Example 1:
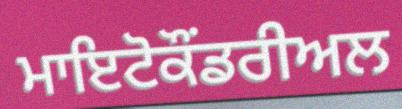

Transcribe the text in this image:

ਮਾਇਟੋਕੌਂਡਰੀਅਲ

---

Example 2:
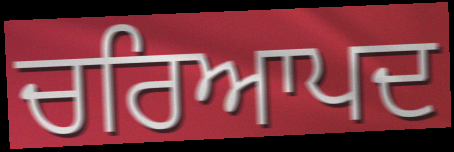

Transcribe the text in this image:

ਚਰਿਆਪਦ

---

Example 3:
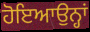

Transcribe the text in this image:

ਹੋਇਆਉਨ੍ਹਾਂ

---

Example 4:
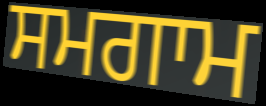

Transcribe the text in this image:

ਸਮਗਾਮ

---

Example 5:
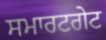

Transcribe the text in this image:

ਸਮਾਰਟਗੇਟ